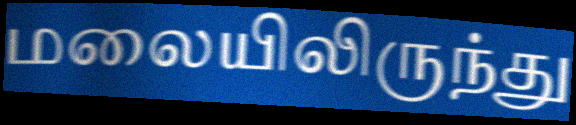
மலையிலிருந்து